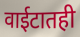
वाईटातही